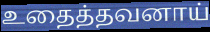
உதைத்தவனாய்